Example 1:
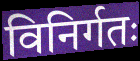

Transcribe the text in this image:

विनिर्गतः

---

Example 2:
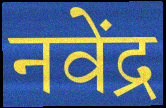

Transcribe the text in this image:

नवेंद्र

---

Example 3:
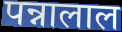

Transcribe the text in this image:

पन्नालाल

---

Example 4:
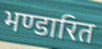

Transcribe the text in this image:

भण्डारित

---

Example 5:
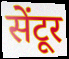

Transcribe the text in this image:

सेंटूर